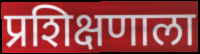
प्रशिक्षणाला